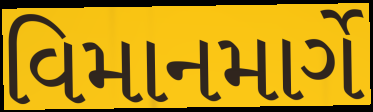
વિમાનમાર્ગે